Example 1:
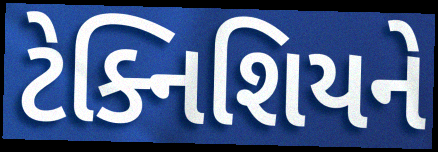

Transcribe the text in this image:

ટેક્નિશિયને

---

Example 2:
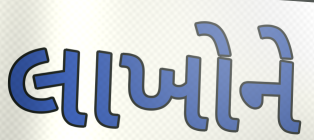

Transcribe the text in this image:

લાખોને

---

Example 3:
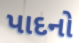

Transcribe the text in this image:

પાદનો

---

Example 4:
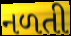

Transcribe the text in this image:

નળતી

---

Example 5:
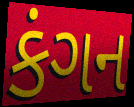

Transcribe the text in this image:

કંગન